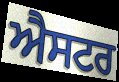
ਐਸਟਰ